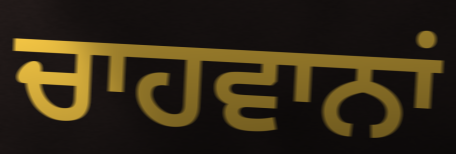
ਚਾਹਵਾਨਾਂ